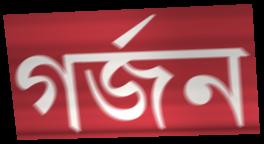
গৰ্জন